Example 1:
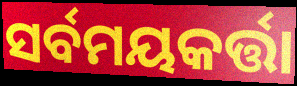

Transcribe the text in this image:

ସର୍ବମୟକର୍ତ୍ତା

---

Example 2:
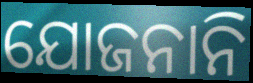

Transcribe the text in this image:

ଯୋଜନାନି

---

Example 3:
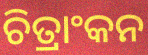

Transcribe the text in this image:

ଚିତ୍ରାଂକନ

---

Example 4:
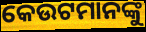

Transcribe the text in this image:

କେଉଟମାନଙ୍କୁ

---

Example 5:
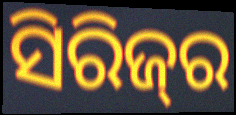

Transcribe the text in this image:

ସିରିଜ୍‌ର